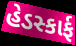
હેડસ્કાર્ફ